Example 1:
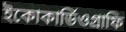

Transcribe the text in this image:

ইকোকার্ডিওগ্রাফি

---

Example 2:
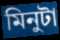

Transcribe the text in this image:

মিনুটা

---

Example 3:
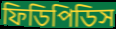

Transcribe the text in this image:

ফিডিপিডিস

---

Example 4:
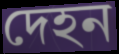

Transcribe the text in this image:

দেহন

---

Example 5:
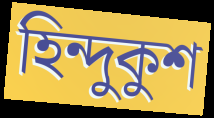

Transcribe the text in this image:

হিন্দুকুশ